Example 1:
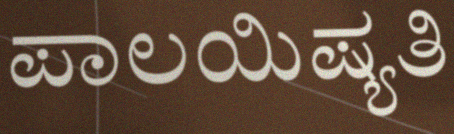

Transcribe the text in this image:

ಪಾಲಯಿಷ್ಯತಿ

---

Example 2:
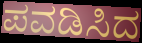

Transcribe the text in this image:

ಪವಡಿಸಿದ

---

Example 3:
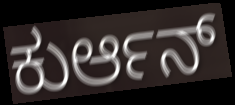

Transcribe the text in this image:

ಕುರ್ಆನ್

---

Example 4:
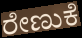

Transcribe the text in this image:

ರೇಣುಕೆ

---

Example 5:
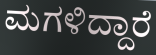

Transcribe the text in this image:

ಮಗಳಿದ್ದಾರೆ